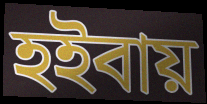
হইবায়